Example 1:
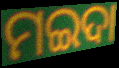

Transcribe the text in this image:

ମଇଦା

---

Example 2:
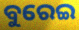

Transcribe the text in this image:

ବୁରେଇ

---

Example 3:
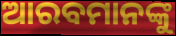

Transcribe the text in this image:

ଆରବମାନଙ୍କୁ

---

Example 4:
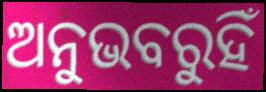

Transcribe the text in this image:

ଅନୁଭବରୁହିଁ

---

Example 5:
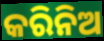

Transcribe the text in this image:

କରିନିଅ